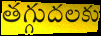
తగ్గుదలకు